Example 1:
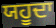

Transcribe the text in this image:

ਯਹੂਦਾ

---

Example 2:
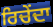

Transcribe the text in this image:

ਰਿਚੇਂਦਾ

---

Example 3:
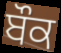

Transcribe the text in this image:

ਬੌਕ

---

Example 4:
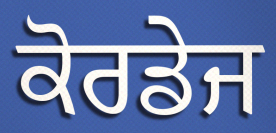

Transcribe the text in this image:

ਕੋਰਡੇਜ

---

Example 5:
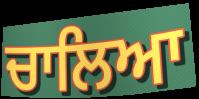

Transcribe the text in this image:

ਚਾਲਿਆ